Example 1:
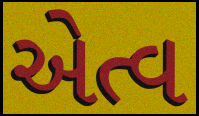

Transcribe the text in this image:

એત્વ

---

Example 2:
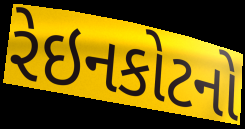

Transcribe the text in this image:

રેઇનકોટનો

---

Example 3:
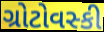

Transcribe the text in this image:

ગ્રોટોવસ્કી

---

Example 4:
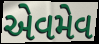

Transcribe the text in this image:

એવમેવ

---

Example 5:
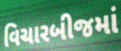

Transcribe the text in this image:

વિચારબીજમાં